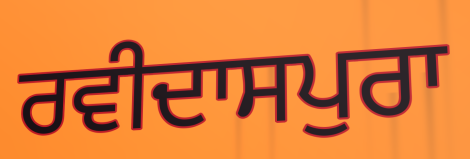
ਰਵੀਦਾਸਪੁਰਾ